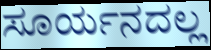
ಸೂರ್ಯನದಲ್ಲ